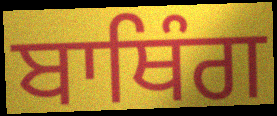
ਬਾਥਿੰਗ